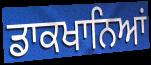
ਡਾਕਖਾਨਿਆਂ